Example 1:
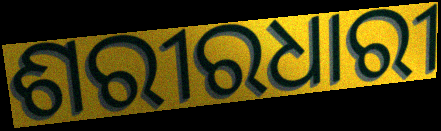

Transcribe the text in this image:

ଶରୀରଧାରୀ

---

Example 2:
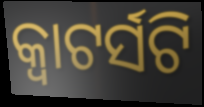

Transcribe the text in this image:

କ୍ୱାଟର୍ସଟି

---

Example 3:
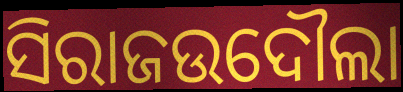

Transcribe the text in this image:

ସିରାଜଉଦୌଲା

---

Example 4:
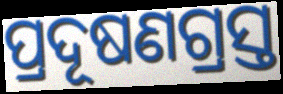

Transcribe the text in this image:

ପ୍ରଦୂଷଣଗ୍ରସ୍ତ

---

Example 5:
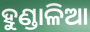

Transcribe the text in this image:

ହୁଣ୍ଡାଳିଆ